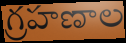
గ్రహణాల